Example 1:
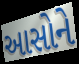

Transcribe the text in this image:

આસોને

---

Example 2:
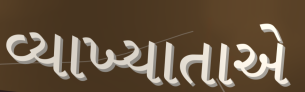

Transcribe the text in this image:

વ્યાખ્યાતાએ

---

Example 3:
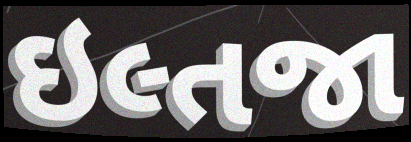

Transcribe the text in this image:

ઇલ્તજા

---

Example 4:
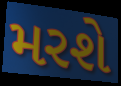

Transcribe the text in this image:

મરશે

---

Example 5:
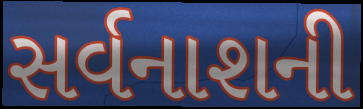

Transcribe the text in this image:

સર્વનાશની